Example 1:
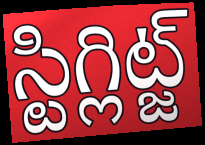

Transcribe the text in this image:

స్టిగ్లిట్జ్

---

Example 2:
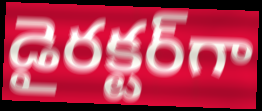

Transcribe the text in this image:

డైరక్టర్‌గా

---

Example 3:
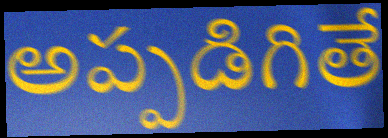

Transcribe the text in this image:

అప్పడిగితే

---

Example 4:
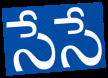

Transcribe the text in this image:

సేసే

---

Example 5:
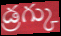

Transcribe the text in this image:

డ్రగ్కు